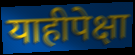
याहीपेक्षा